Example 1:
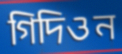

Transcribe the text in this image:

গিদিওন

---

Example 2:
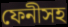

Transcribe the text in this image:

ফেনীসহ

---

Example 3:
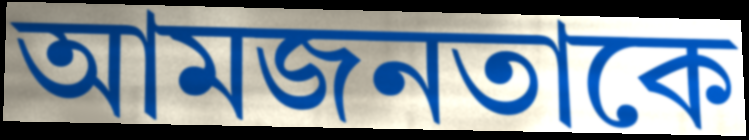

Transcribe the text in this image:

আমজনতাকে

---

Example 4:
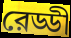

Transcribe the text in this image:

রেড্ডী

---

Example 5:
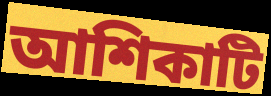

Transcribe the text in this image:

আশিকাটি